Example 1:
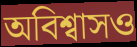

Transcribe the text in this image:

অবিশ্বাসও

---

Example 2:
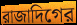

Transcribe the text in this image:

রাজাদিগের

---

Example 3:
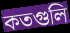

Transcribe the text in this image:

কতগুলি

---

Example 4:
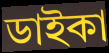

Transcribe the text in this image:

ডাইকা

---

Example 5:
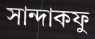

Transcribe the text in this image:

সান্দাকফু